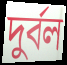
দুৰ্বল